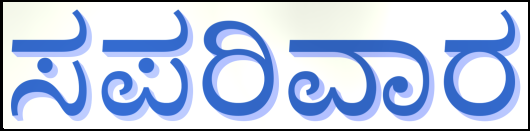
ಸಪರಿವಾರ